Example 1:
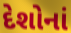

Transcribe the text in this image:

દેશોનાં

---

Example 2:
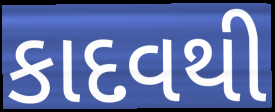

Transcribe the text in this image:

કાદવથી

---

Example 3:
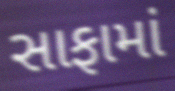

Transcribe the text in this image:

સાફામાં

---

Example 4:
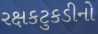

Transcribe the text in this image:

રક્ષકટુકડીનો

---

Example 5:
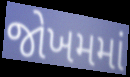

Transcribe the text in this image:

જોખમમાં